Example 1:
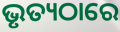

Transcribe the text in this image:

ଭୃତ୍ୟଠାରେ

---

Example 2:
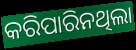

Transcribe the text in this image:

କରିପାରିନଥିଲା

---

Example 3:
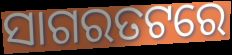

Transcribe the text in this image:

ସାଗରତଟରେ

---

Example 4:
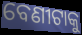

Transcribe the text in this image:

ବେଣୀଟାକୁ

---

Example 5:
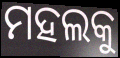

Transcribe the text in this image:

ମହଲକୁ